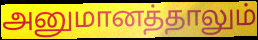
அனுமானத்தாலும்